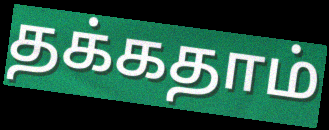
தக்கதாம்